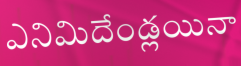
ఎనిమిదేండ్లయినా